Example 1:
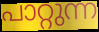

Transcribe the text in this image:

പാറ്റുന്ന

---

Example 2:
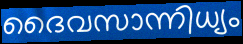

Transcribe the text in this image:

ദൈവസാന്നിധ്യം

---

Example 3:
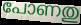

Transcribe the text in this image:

പോണതു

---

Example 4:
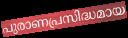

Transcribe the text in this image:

പുരാണപ്രസിദ്ധമായ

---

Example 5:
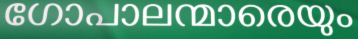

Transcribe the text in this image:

ഗോപാലന്മാരെയും